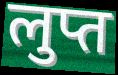
लुप्त